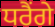
ਧਰੈਂਗੇ